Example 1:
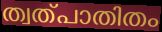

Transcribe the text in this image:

ത്വത്പാതിതം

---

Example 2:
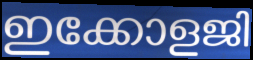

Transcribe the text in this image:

ഇക്കോളജി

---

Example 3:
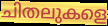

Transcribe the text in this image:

ചിതലുകളെ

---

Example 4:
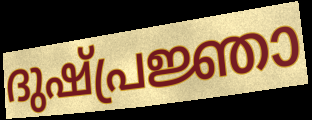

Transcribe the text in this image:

ദുഷ്പ്രജ്ഞാ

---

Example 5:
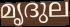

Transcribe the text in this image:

മൃദുല